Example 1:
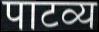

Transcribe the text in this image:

पाटव्य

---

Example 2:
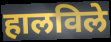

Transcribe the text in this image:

हालविले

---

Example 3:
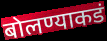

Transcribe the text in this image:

बोलण्याकडं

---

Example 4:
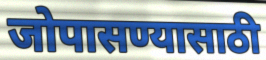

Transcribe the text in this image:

जोपासण्यासाठी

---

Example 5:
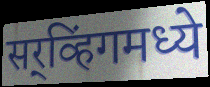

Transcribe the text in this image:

सर्व्हिंगमध्ये